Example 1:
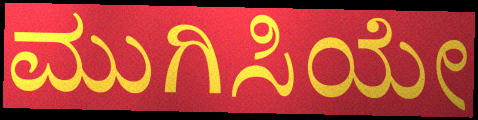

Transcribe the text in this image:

ಮುಗಿಸಿಯೇ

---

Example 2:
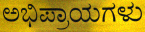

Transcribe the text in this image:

ಅಭಿಪ್ರಾಯಗಳು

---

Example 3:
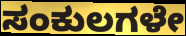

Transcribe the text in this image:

ಸಂಕುಲಗಳೇ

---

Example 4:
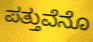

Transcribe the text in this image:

ಪತ್ತುವೆನೊ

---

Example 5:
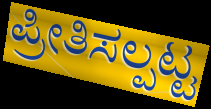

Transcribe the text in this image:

ಪ್ರೀತಿಸಲ್ಪಟ್ಟ